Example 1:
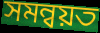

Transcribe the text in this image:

সমন্বয়ত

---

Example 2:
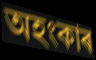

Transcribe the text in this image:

অহংকাৰ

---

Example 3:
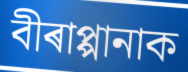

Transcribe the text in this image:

বীৰাপ্পানাক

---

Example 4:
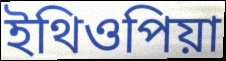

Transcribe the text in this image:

ইথিওপিয়া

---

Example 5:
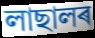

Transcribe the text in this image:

লাছালৰ